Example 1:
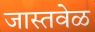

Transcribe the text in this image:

जास्तवेळ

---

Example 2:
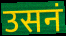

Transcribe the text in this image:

उसनं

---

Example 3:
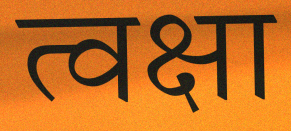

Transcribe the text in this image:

त्वक्षा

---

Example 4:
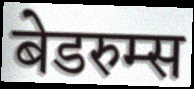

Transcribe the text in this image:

बेडरुम्स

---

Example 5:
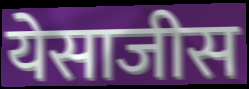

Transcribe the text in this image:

येसाजीस